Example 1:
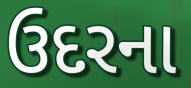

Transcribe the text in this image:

ઉદરના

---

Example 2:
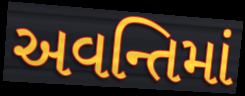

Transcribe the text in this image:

અવન્તિમાં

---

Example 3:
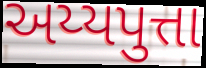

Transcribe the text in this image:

અય્યપુત્તા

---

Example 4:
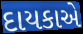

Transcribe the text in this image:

દાયકાએ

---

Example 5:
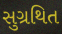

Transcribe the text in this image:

સુગ્રથિત